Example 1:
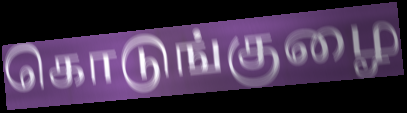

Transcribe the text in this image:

கொடுங்குழை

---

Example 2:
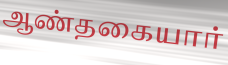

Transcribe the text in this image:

ஆண்தகையார்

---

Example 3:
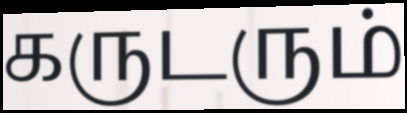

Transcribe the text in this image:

கருடரும்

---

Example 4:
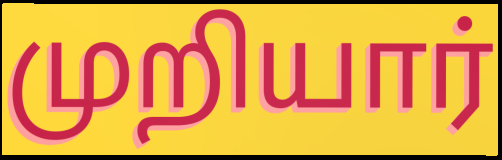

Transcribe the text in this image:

முறியார்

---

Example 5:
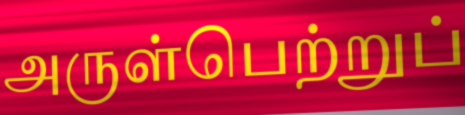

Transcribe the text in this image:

அருள்பெற்றுப்